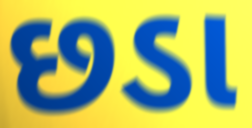
છડા